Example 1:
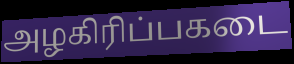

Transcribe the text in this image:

அழகிரிப்பகடை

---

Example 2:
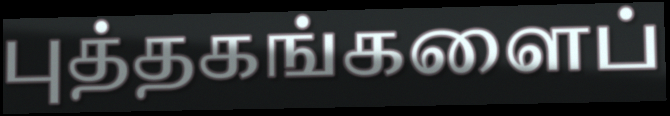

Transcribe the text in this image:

புத்தகங்களைப்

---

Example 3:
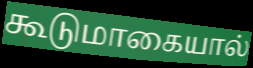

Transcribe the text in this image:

கூடுமாகையால்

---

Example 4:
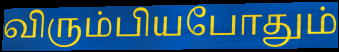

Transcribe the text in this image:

விரும்பியபோதும்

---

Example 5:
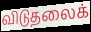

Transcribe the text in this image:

விடுதலைக்